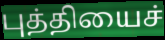
புத்தியைச்